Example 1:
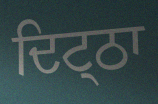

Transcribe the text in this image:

ਦਿਟ੍ਠਾ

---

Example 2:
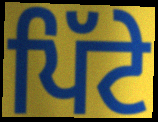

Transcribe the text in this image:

ਪਿੱਟੇ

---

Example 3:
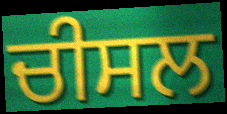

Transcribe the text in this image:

ਚੀਸਲ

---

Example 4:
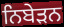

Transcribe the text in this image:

ਨਿਬੇੜਨ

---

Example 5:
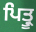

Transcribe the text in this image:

ਪਿਤ੍ਰੂ